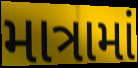
માત્રામાં